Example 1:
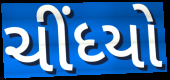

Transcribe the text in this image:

ચીંધ્યો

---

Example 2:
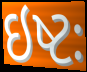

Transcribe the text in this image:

ઇષ્ટઃ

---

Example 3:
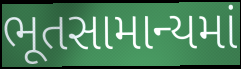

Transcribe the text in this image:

ભૂતસામાન્યમાં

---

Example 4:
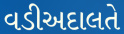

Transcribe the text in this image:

વડીઅદાલતે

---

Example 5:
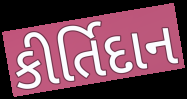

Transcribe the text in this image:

કીર્તિદાન